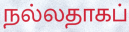
நல்லதாகப்